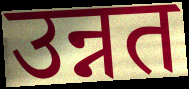
उन्नत